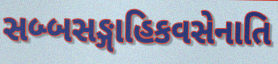
સબ્બસઙ્ગાહિકવસેનાતિ